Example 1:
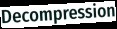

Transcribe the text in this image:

Decompression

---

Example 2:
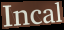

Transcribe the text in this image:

Incal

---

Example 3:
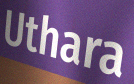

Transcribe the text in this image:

Uthara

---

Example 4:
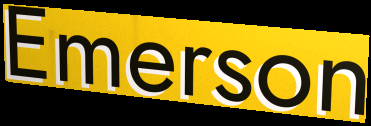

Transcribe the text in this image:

Emerson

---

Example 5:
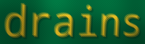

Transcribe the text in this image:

drains